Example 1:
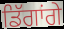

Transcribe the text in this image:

ਡਿੱਗਾਂਗੇ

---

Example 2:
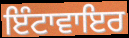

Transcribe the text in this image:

ਇੰਟਾਵਾਇਰ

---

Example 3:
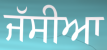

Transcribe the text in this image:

ਜੱਸੀਆ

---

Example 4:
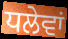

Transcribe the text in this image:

ਧਲੇਵਾਂ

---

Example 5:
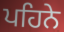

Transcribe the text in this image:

ਪਹਿਨੇ